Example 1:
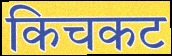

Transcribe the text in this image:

किचकट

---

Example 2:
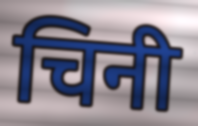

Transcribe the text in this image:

चिनी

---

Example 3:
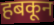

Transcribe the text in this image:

हबकून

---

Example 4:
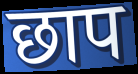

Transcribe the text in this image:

छाप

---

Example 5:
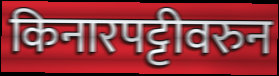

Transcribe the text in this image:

किनारपट्टीवरुन